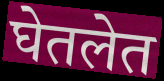
घेतलेत